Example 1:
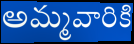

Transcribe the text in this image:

అమ్మవారికి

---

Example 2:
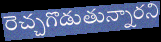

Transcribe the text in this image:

రెచ్చగొడుతున్నారని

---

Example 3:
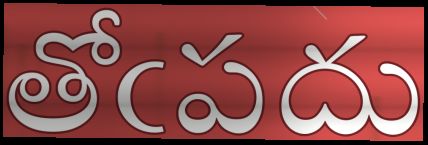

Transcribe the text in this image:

తోఁపదు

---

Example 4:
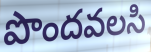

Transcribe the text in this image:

పొందవలసి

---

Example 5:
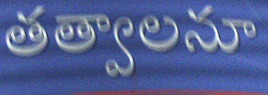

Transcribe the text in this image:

తత్వాలనూ